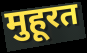
मुहूरत